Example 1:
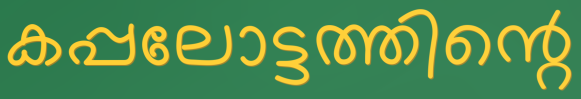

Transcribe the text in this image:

കപ്പലോട്ടത്തിന്റെ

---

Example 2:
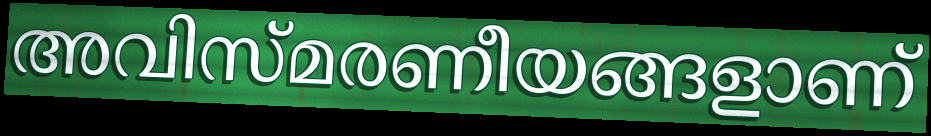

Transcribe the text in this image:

അവിസ്മരണീയങ്ങളാണ്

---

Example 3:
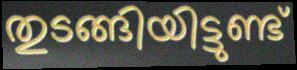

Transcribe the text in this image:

തുടങ്ങിയിട്ടുണ്ട്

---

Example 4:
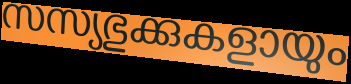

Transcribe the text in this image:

സസ്യഭുക്കുകളായും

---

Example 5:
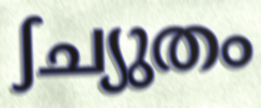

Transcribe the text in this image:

ഽച്യുതം